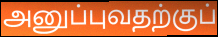
அனுப்புவதற்குப்